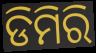
ଡିମିରି